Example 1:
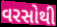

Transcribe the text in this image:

વરસોથી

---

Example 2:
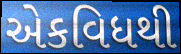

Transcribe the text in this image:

એકવિધથી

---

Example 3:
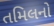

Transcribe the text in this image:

તમિલનો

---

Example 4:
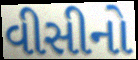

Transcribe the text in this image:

વીસીનો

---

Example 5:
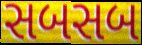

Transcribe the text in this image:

સબસબ